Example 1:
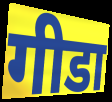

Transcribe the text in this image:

गीडा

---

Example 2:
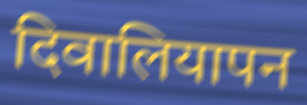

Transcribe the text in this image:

दिवालियापन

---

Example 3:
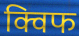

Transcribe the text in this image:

क्विफ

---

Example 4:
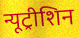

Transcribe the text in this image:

न्यूट्रीशिन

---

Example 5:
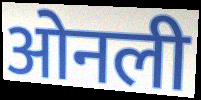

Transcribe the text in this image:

ओनली